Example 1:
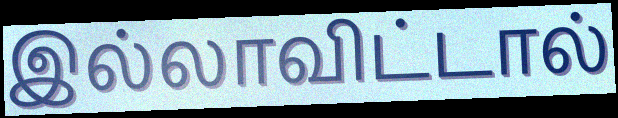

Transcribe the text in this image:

இல்லாவிட்டால்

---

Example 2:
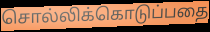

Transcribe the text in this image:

சொல்லிக்கொடுப்பதை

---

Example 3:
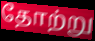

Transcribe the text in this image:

தோற்று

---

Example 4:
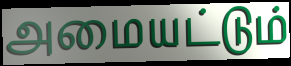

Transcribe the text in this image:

அமையட்டும்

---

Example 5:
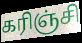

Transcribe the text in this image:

கரிஞ்சி